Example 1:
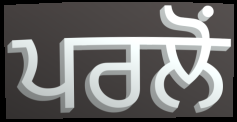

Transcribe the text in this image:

ਪਰਲੋਂ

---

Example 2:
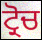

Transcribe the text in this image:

ਟ੍ਰੋਚ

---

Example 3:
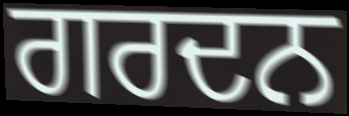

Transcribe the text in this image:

ਗਰਦਨ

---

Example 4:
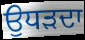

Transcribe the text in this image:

ਉਧੜਦਾ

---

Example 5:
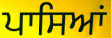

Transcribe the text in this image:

ਪਾਸਿਆਂ